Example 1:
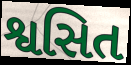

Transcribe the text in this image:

શ્વસિત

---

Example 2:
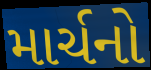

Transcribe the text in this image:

માર્ચનો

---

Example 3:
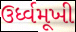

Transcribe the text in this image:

ઉર્ધ્વમૂખી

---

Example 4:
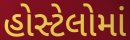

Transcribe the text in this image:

હોસ્ટેલોમાં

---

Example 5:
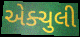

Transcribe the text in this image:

એક્ચુલી